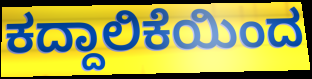
ಕದ್ದಾಲಿಕೆಯಿಂದ